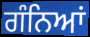
ਗੰਨਿਆਂ